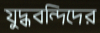
যুদ্ধবন্দিদের